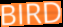
BIRD